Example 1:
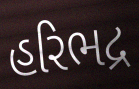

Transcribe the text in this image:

હરિભદ્ર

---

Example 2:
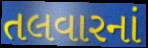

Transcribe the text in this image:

તલવારનાં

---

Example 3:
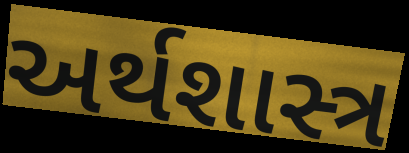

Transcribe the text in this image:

અર્થશાસ્ત્ર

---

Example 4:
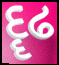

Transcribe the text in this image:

દૄઢ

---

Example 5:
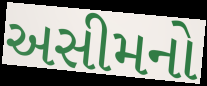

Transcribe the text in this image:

અસીમનો